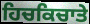
ਹਿਚਕਿਚਾਤੇ